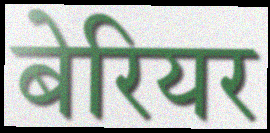
बेरियर